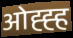
ओह्ह्ह